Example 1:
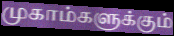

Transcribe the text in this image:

முகாம்களுக்கும்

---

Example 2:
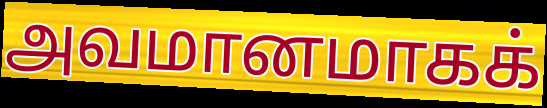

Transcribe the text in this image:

அவமானமாகக்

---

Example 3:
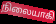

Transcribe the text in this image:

நிலையாகி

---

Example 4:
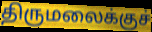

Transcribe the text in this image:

திருமலைக்குச்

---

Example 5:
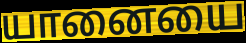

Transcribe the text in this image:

யானையை